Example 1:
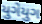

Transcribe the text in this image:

યુગેયુગ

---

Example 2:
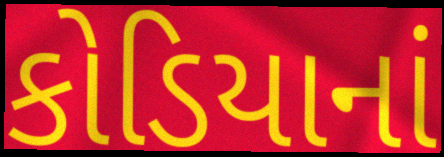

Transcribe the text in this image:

કોડિયાનાં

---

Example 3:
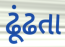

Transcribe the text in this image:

ઢૂંઢતા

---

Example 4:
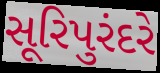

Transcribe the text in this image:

સૂરિપુરંદરે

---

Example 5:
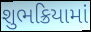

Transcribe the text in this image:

શુભક્રિયામાં